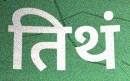
तिथं